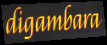
digambara